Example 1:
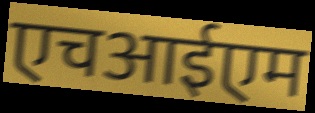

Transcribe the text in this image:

एचआईएम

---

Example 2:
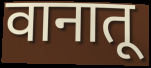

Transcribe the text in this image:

वानातू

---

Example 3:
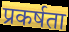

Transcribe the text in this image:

प्रकर्षता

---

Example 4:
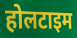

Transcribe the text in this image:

होलटाइम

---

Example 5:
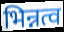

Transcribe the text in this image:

भिन्नत्व